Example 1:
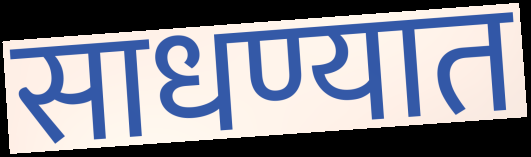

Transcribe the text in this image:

साधण्यात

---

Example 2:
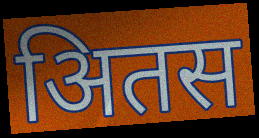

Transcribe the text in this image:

अितस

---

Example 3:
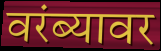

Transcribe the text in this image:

वरंब्यावर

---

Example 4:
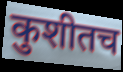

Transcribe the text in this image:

कुशीतच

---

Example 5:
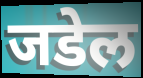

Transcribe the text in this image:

जडेल